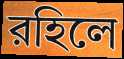
রহিলে